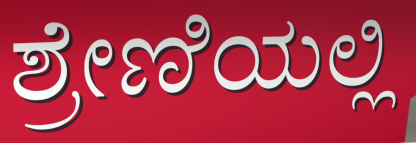
ಶ್ರೇಣಿಯಲ್ಲಿ